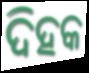
ଦିହକ